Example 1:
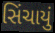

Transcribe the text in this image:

સિંચાયું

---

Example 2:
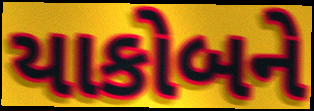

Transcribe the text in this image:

યાકોબને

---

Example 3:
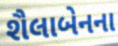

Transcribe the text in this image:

શૈલાબેનના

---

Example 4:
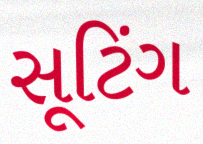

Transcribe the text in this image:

સૂટિંગ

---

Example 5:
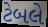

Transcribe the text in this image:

ટેબલે